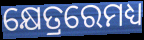
କ୍ଷେତ୍ରରେମଧ୍ୟ